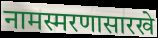
नामस्मरणासारखे